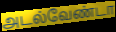
அடல்வேண்டா